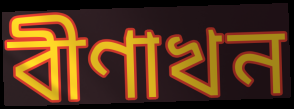
বীণাখন